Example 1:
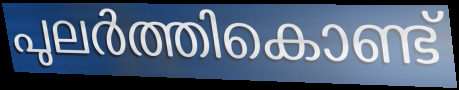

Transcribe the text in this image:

പുലർത്തികൊണ്ട്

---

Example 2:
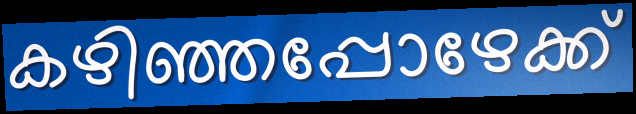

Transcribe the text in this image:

കഴിഞ്ഞപ്പോഴേക്ക്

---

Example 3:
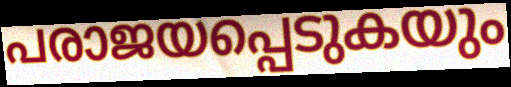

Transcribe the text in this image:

പരാജയപ്പെടുകയും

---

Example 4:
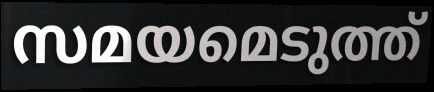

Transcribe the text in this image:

സമയമെടുത്ത്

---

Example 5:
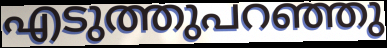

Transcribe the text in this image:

എടുത്തുപറഞ്ഞു